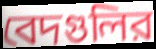
বেদগুলির